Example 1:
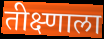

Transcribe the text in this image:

तीक्ष्णाला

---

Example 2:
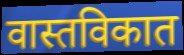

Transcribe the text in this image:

वास्तविकात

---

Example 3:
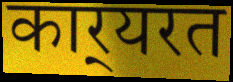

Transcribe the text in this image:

कार्यरत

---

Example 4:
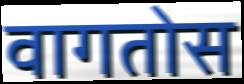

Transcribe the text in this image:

वागतोस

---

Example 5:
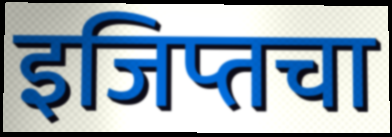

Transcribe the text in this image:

इजिप्तचा